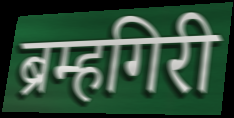
ब्रम्हगिरी